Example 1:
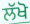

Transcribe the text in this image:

ਲੱਖੋ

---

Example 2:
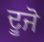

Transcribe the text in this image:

ਦੂਜੋ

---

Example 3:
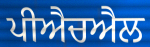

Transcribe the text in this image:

ਪੀਐਚਐਲ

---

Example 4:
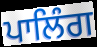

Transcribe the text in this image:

ਪਾਲਿੰਗ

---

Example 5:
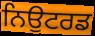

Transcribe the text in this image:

ਨਿਉਟਰਡ